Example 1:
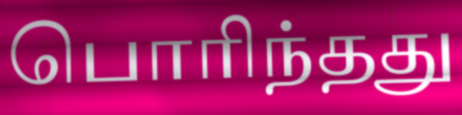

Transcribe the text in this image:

பொரிந்தது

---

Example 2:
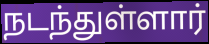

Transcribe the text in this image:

நடந்துள்ளார்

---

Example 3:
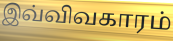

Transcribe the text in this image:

இவ்விவகாரம்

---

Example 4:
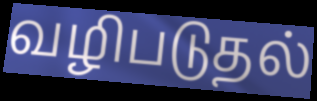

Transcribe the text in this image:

வழிபடுதல்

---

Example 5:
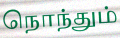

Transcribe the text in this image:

நொந்தும்